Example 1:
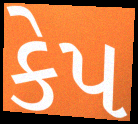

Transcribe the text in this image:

કેપ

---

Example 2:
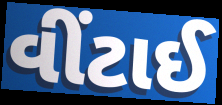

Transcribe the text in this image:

વીંટાઈ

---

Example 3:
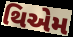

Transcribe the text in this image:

થિએમ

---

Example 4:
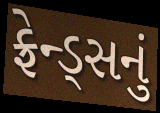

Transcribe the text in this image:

ફ્રેન્ડ્સનું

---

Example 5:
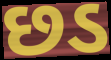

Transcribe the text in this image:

છડ